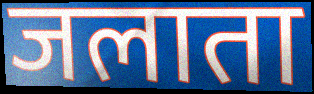
जलाता